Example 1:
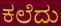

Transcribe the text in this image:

ಕಲೆದು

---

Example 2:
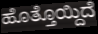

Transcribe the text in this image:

ಹೊತ್ತೊಯ್ದಿದೆ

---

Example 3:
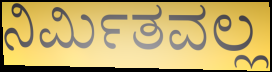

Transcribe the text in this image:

ನಿರ್ಮಿತವಲ್ಲ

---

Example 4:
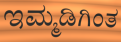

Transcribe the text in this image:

ಇಮ್ಮಡಿಗಿಂತ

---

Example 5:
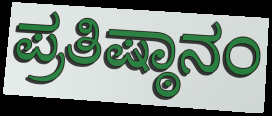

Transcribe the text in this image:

ಪ್ರತಿಷ್ಠಾನಂ